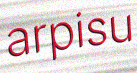
arpisu